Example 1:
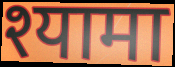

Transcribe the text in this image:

श्यामा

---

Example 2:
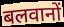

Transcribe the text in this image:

बलवानों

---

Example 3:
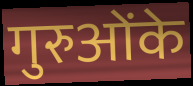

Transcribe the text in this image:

गुरुओंके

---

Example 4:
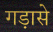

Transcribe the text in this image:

गड़ासे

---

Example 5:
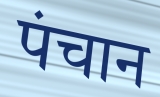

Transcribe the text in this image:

पंचान